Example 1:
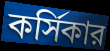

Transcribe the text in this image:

কর্সিকার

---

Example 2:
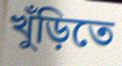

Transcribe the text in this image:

খুঁড়িতে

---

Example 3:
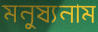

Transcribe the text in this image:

মনুষ্যনাম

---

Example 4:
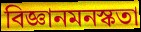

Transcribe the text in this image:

বিজ্ঞানমনস্কতা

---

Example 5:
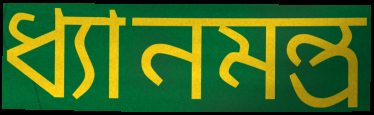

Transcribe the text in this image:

ধ্যানমন্ত্র